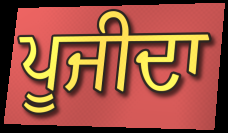
ਪੂਜੀਦਾ